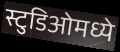
स्टुडिओमध्ये